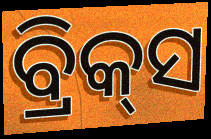
ବ୍ରିକ୍‌ସ